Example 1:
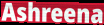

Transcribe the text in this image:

Ashreena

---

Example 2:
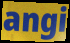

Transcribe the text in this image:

angi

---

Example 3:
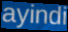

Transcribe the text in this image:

ayindi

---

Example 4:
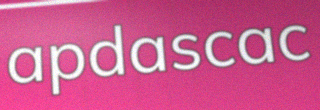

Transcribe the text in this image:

apdascac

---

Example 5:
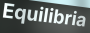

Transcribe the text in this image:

Equilibria